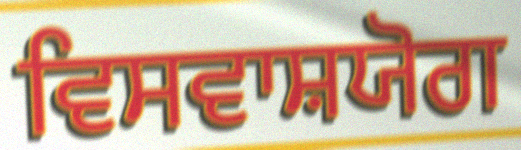
ਵਿਸਵਾਸ਼ਯੋਗ